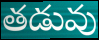
తడువు